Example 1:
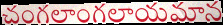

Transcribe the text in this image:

చంగలాంగలాయమాన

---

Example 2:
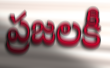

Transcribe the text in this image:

ప్రజలకీ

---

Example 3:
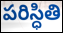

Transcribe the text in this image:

పరిస్ధితి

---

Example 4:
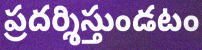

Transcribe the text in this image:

ప్రదర్శిస్తుండటం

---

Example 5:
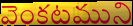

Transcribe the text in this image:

వెంకటముని